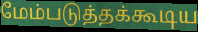
மேம்படுத்தக்கூடிய